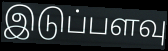
இடுப்பளவு